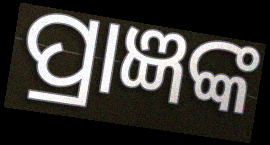
ପ୍ରାଜ୍ଞଙ୍କ